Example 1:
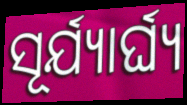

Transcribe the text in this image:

ସୂର୍ଯ୍ୟାର୍ଘ୍ୟ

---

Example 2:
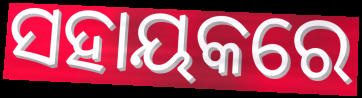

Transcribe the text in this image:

ସହାୟକରେ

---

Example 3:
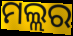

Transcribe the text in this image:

ମଲ୍ଲର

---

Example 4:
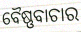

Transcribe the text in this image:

ବୈଷ୍ଣବାଚାର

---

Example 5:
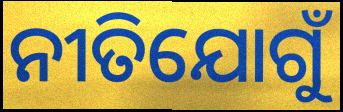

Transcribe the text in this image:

ନୀତିଯୋଗୁଁ